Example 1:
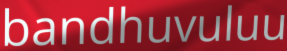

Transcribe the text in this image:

bandhuvuluu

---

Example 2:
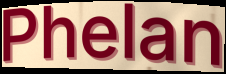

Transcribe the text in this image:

Phelan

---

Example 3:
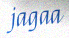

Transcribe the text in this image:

jagaa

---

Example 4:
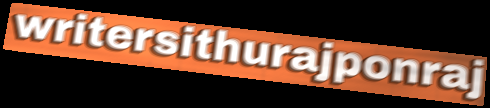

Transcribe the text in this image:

writersithurajponraj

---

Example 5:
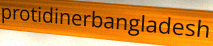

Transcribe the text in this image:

protidinerbangladesh